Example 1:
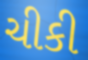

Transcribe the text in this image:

ચીકી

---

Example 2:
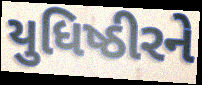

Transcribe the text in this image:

યુધિષ્ઠીરને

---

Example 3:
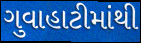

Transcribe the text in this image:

ગુવાહાટીમાંથી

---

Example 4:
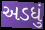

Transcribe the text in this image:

અડધું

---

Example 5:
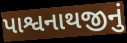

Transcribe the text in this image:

પાશ્વનાથજીનું